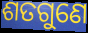
ଶତଗୁଣେ